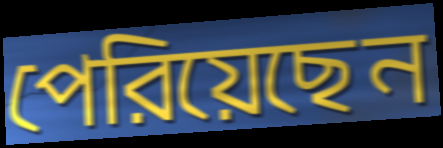
পেরিয়েছেন